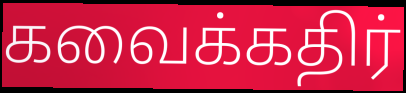
கவைக்கதிர்